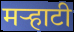
मऱ्हाटी